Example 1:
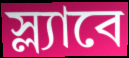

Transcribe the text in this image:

স্ল্যাবে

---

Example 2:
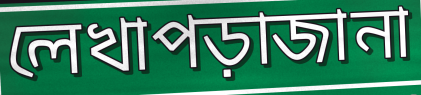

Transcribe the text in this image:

লেখাপড়াজানা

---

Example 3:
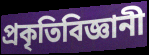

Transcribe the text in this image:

প্রকৃতিবিজ্ঞানী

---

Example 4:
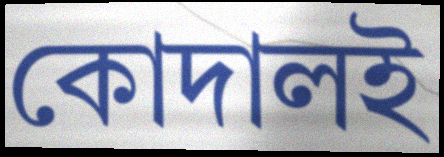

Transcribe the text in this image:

কোদালই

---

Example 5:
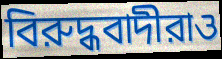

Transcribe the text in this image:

বিরুদ্ধবাদীরাও